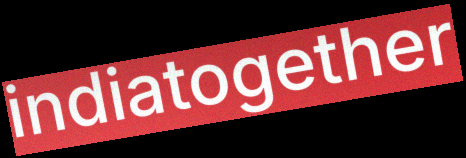
indiatogether